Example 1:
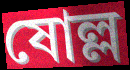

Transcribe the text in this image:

ষোল্ল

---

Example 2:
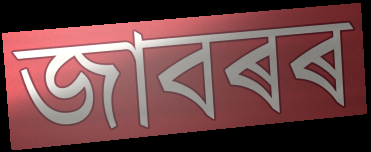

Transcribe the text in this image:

জাবৰৰ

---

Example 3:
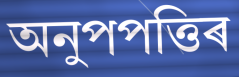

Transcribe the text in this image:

অনুপপত্তিৰ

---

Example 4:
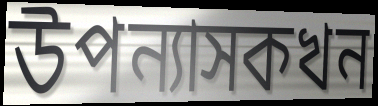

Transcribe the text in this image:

উপন্যাসকখন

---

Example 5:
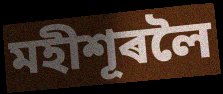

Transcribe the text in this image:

মহীশূৰলৈ